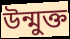
উন্মুক্ত